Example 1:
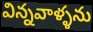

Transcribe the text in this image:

విన్నవాళ్ళను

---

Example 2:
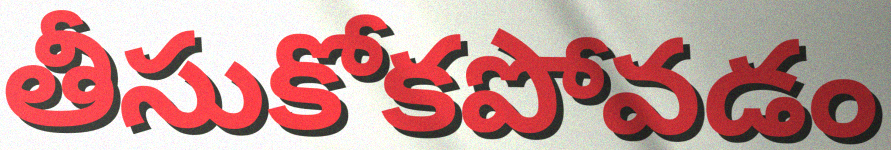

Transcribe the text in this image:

తీసుకోకపోవడం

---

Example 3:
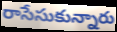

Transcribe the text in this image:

రాసేసుకున్నారు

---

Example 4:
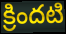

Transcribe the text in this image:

క్రిందటి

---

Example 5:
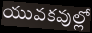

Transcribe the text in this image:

యువకవుల్లో